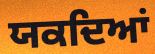
ਯਕਦਿਆਂ